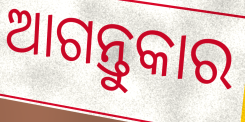
ଆଗନ୍ତୁକାର